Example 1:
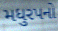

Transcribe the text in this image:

મધુરપનો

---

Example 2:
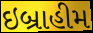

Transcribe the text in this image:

ઇબ્રાહીમ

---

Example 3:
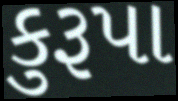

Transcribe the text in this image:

કુરૂપા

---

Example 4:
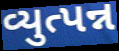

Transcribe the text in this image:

વ્યુત્પન્ન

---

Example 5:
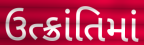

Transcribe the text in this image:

ઉત્ક્રાંતિમાં